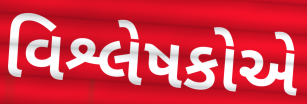
વિશ્લેષકોએ